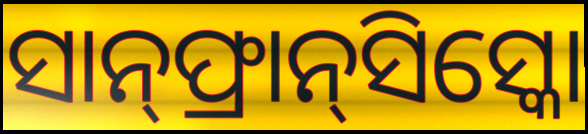
ସାନ୍‌ଫ୍ରାନ୍‌ସିସ୍କୋ